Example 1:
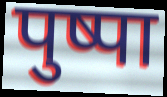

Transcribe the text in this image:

पुष्पा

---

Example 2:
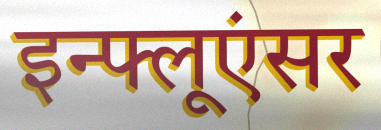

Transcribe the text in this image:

इन्फ्लूएंसर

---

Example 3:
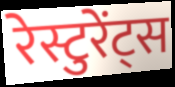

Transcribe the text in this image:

रेस्टुरेंट्स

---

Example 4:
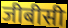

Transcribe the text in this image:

जीबीसी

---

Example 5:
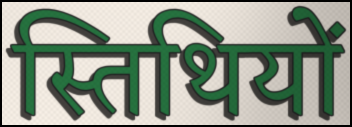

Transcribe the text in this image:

स्तिथियों